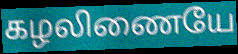
கழலிணையே